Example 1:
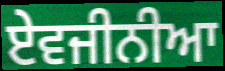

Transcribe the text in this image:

ਏਵਜੀਨੀਆ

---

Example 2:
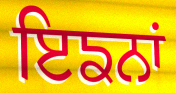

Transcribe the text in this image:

ਇਙਨਾਂ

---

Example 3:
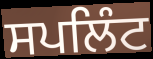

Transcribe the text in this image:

ਸਪਲਿੰਟ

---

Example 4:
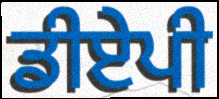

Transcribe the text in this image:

ਡੀਏਪੀ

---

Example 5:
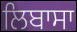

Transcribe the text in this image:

ਲਿਬਾਸਾ